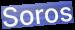
Soros